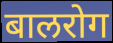
बालरोग